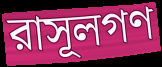
রাসূলগণ